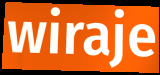
wiraje